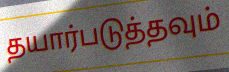
தயார்படுத்தவும்